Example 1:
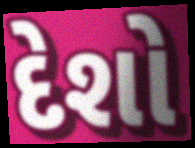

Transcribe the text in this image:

દેશો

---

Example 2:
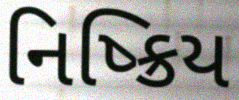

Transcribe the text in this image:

નિષ્ક્રિય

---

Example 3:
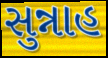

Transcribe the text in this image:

સુન્નાહ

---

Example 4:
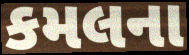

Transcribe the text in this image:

કમલના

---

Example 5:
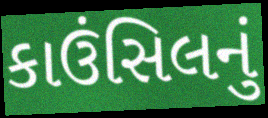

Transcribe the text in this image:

કાઉંસિલનું